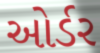
ઓર્ડર